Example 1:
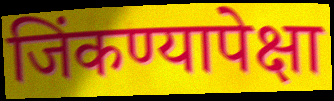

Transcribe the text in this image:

जिंकण्यापेक्षा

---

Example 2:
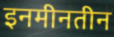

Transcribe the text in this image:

इनमीनतीन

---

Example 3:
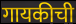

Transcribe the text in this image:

गायकीची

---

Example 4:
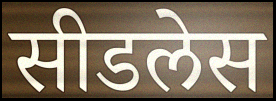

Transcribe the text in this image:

सीडलेस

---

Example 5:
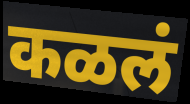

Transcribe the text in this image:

कळलं